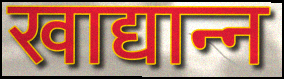
खाद्यान्न